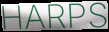
HARPS